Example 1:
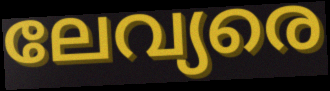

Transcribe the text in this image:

ലേവ്യരെ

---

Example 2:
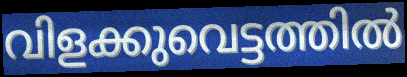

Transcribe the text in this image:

വിളക്കുവെട്ടത്തിൽ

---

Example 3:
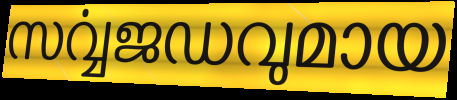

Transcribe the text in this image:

സൎവ്വജഡവുമായ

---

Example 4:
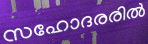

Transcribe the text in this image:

സഹോദരരിൽ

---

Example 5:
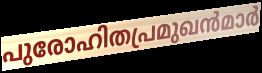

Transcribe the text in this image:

പുരോഹിതപ്രമുഖൻമാർ